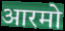
आरमो